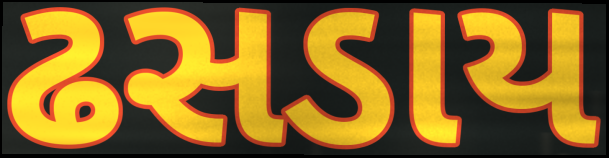
ઢસડાય